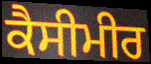
ਕੈਸੀਮੀਰ